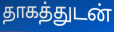
தாகத்துடன்